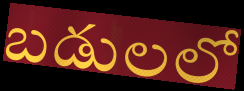
బడులలో